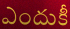
ఎందుకీ